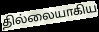
தில்லையாகிய